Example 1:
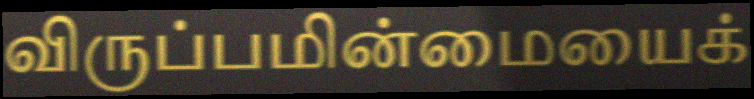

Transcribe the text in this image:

விருப்பமின்மையைக்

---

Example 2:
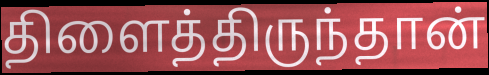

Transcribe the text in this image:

திளைத்திருந்தான்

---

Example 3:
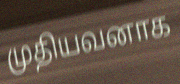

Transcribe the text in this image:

முதியவனாக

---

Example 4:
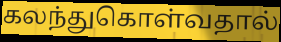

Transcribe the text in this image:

கலந்துகொள்வதால்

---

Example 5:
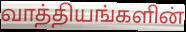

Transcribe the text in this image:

வாத்தியங்களின்